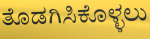
ತೊಡಗಿಸಿಕೊಳ್ಳಲು